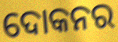
ଦୋକନର